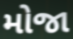
મોજા